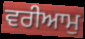
ਵਰੀਆਮੁ